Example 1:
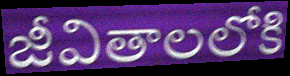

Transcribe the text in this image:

జీవితాలలోకి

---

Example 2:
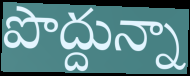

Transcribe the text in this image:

పొద్దున్నా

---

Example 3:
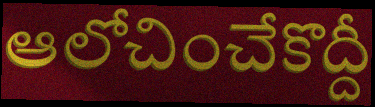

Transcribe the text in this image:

ఆలోచించేకొద్దీ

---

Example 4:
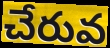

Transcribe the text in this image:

చేరువ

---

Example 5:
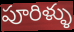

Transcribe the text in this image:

పూరిళ్ళు